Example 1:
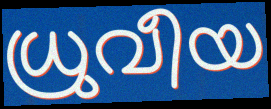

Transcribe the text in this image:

ധ്രുവീയ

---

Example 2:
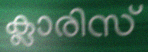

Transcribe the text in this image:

ക്ലാരിസ്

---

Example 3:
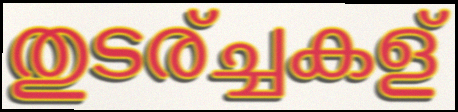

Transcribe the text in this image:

തുടര്ച്ചകള്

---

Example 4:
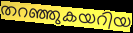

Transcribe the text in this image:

തറഞ്ഞുകയറിയ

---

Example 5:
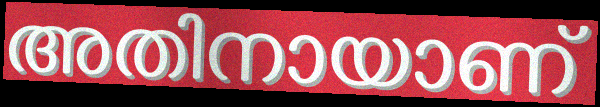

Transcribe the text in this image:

അതിനായാണ്